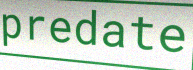
predate